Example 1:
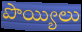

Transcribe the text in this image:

పొయ్యిలు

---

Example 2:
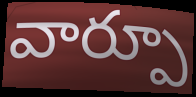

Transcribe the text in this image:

వార్పూ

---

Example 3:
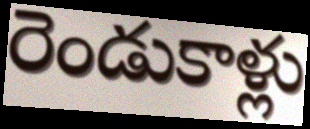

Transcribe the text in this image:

రెండుకాళ్లు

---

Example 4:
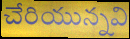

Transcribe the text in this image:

చేరియున్నవి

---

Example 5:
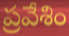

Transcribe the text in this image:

ప్రవేశిం